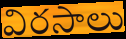
విరసాలు